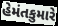
હેમંતકુમારે